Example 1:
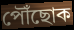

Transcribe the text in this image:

পৌঁছোক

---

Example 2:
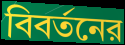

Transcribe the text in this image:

বিবর্তনের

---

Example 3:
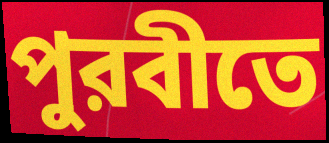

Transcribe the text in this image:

পুরবীতে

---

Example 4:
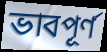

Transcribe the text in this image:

ভাবপূর্ণ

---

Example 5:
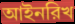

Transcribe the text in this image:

আইনরিখ